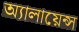
অ্যালায়েন্স